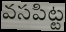
వసపిట్ట